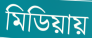
মিডিয়ায়